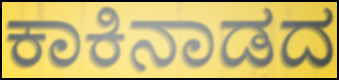
ಕಾಕಿನಾಡದ